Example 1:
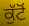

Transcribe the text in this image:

ਕੁੱਟੋਂ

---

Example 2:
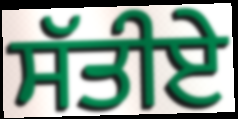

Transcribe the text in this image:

ਸੱਤੀਏ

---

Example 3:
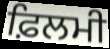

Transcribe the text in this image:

ਫ਼ਿਲਮੀ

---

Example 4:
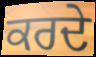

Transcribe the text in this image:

ਕਰਦੇ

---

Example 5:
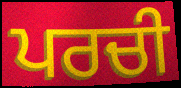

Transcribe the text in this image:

ਪਰਚੀ